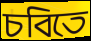
চবিতে